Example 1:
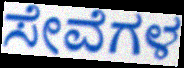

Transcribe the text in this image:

ಸೇವೆಗಳ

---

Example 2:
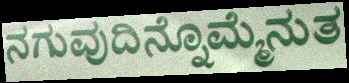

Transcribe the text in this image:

ನಗುವುದಿನ್ನೊಮ್ಮೆನುತ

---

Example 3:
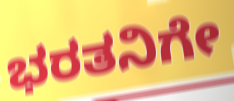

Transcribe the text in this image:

ಭರತನಿಗೇ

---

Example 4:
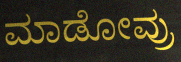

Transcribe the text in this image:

ಮಾಡೋವ್ರು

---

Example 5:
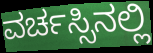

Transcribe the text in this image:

ವರ್ಚಸ್ಸಿನಲ್ಲಿ